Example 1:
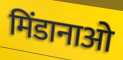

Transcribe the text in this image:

मिंडानाओ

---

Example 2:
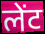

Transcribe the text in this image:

लेंट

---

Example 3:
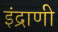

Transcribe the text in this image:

इंद्राणी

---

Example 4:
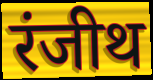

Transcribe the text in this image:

रंजीथ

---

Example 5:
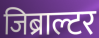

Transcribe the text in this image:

जिब्राल्टर